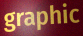
graphic